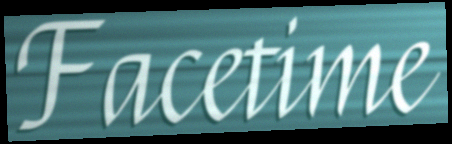
Facetime